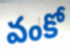
వంకో